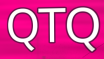
QTQ